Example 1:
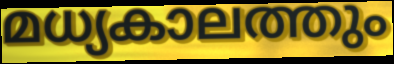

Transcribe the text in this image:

മധ്യകാലത്തും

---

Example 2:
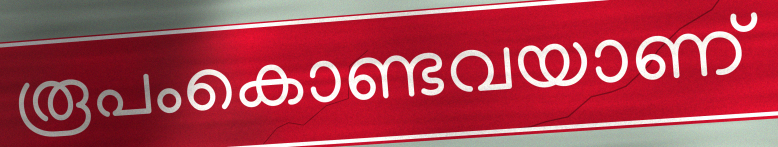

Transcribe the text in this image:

രൂപംകൊണ്ടവയാണ്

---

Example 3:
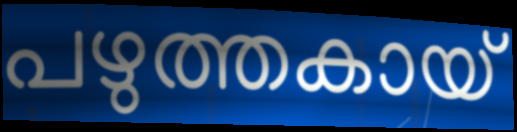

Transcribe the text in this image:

പഴുത്തകായ്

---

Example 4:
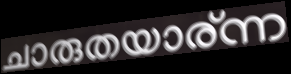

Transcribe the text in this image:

ചാരുതയാര്ന്ന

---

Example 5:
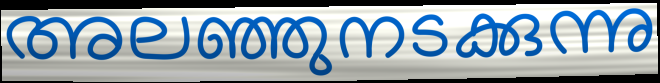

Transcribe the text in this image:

അലഞ്ഞുനടക്കുന്നു